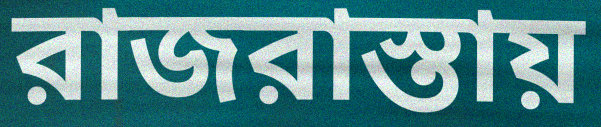
রাজরাস্তায়